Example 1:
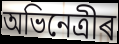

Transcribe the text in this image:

অভিনেত্ৰীৰ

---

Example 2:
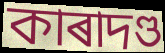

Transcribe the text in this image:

কাৰাদণ্ড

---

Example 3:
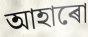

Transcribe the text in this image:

আহাৰো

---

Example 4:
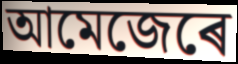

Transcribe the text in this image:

আমেজেৰে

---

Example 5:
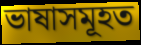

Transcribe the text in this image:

ভাষাসমূহত